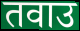
तवाउ